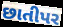
છાતીપર